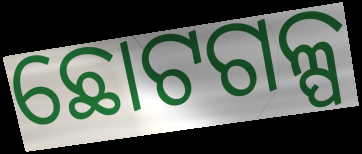
ଛୋଟଗଳ୍ପ